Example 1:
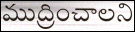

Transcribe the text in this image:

ముద్రించాలని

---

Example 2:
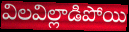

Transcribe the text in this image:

విలవిల్లాడిపోయి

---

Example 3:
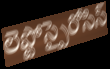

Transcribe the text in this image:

లెప్టోస్పైరోసిస్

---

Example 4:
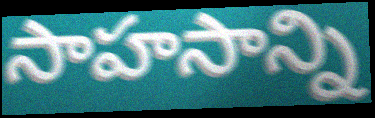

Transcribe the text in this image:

సాహసాన్ని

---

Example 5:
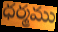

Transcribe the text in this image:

ధర్మము